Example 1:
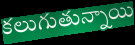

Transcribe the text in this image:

కలుగుతున్నాయి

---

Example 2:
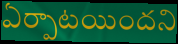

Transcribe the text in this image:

ఏర్పాటయిందని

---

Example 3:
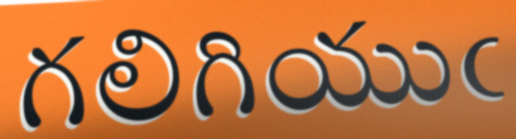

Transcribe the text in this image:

గలిగియుఁ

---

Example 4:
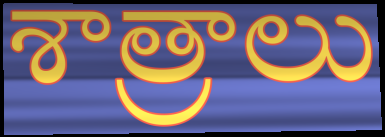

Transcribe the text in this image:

శాత్రాలు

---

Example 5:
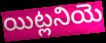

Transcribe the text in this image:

యిట్లనియె